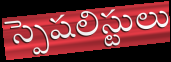
స్పెషలిస్టులు